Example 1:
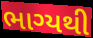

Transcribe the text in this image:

ભાગ્યથી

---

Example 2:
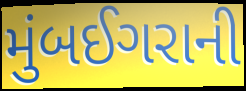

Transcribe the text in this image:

મુંબઈગરાની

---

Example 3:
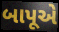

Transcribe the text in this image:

બાપૂએ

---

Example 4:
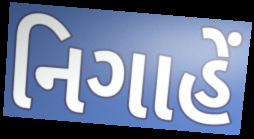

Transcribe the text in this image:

નિગાહેં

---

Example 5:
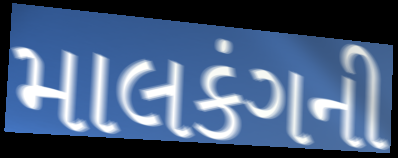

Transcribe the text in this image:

માલકંગની